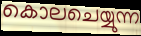
കൊലചെയ്യുന്ന